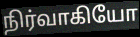
நிர்வாகியோ